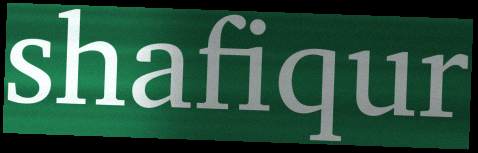
shafiqur